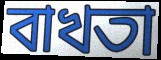
বাখতা